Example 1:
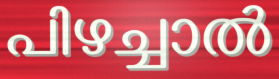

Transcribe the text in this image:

പിഴച്ചാൽ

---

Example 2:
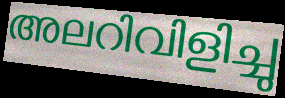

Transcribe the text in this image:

അലറിവിളിച്ചു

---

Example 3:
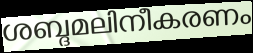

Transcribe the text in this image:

ശബ്ദമലിനീകരണം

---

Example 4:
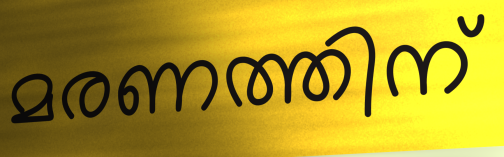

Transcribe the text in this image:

മരണത്തിന്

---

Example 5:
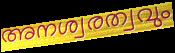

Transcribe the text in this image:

അനശ്വരത്വവും